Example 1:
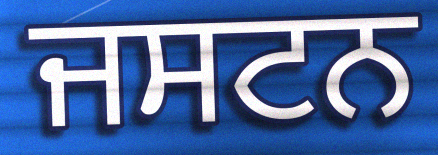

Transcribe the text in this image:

ਜਸਟਨ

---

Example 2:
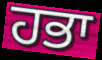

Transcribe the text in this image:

ਹਭਾ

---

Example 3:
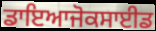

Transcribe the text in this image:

ਡਾਇਆਜੋਕਸਾਈਡ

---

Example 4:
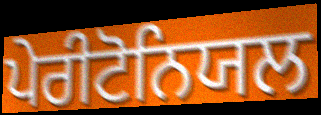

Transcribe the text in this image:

ਪੇਰੀਟੋਨਿਯਲ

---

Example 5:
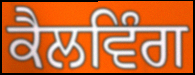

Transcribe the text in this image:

ਕੈਲਵਿੰਗ